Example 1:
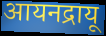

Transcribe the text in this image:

आयनद्रायू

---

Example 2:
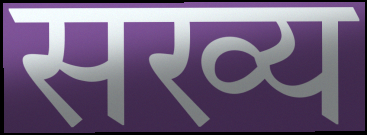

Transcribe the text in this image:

सख्य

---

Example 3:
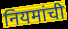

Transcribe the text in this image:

नियमांची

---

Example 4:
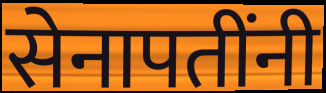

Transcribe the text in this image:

सेनापतींनी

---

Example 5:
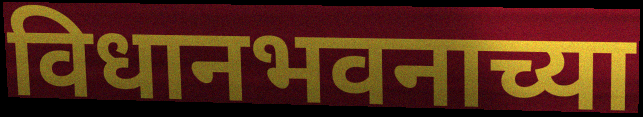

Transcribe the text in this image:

विधानभवनाच्या